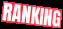
RANKING